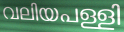
വലിയപള്ളി